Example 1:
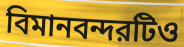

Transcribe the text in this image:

বিমানবন্দরটিও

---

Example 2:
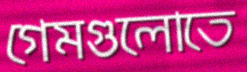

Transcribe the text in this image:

গেমগুলোতে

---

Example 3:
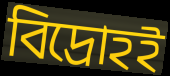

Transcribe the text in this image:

বিদ্রোহই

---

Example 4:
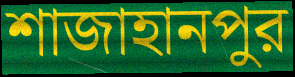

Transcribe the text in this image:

শাজাহানপুর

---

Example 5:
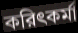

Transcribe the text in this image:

করিৎকর্মা